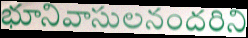
భూనివాసులనందరిని